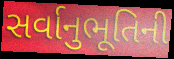
સર્વાનુભૂતિની